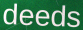
deeds